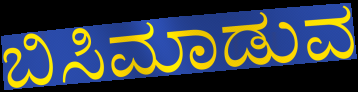
ಬಿಸಿಮಾಡುವ